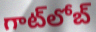
గాట్‍లోబ్